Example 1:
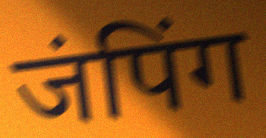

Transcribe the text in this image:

जंपिंग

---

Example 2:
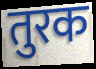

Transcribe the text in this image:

तुरक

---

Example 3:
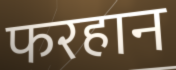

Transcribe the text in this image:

फरहान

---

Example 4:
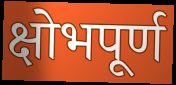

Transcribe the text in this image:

क्षोभपूर्ण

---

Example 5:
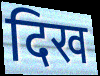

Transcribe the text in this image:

दिख